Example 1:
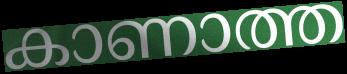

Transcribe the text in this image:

കാണാത്ത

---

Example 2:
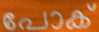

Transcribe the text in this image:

പോക്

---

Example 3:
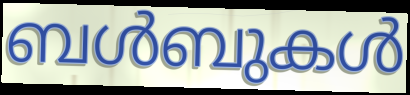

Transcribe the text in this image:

ബൾബുകൾ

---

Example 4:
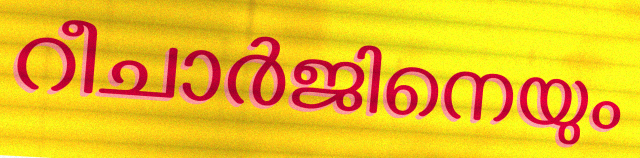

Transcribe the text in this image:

റീചാർജിനെയും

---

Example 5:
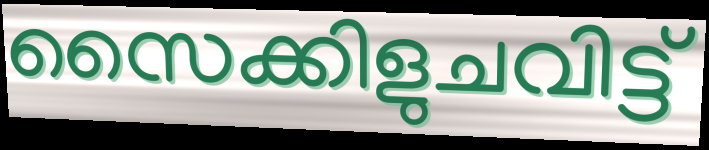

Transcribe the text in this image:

സൈക്കിളുചവിട്ട്